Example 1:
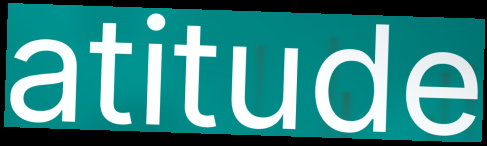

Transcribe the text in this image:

atitude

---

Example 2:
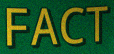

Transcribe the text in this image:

FACT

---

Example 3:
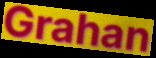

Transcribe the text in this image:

Grahan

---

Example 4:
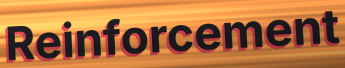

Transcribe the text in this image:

Reinforcement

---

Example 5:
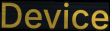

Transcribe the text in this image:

Device